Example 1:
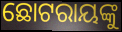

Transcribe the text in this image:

ଛୋଟରାୟଙ୍କୁ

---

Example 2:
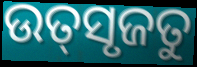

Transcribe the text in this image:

ଉତ୍‌ସୃଜତୁ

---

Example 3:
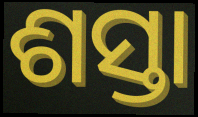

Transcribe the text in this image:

ଶସ୍ତା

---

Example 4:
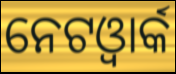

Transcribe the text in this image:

ନେଟଓ୍ବାର୍କ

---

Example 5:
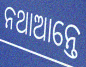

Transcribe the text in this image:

ନଥାଆନ୍ତେ